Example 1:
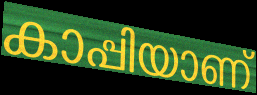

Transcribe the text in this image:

കാപ്പിയാണ്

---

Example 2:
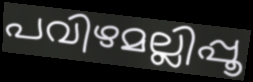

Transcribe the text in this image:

പവിഴമല്ലിപ്പൂ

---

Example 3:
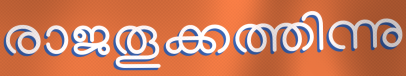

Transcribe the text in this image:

രാജതൂക്കത്തിന്നു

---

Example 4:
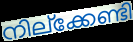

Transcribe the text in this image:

നില്ക്കേണ്ടി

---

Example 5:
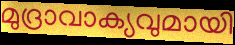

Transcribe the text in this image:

മുദ്രാവാക്യവുമായി